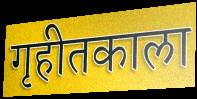
गृहीतकाला